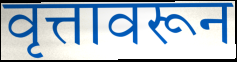
वृत्तावरून